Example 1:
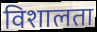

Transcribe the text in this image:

विशालता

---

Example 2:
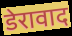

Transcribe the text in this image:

डेरावाद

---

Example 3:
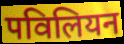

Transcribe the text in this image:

पविलियन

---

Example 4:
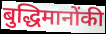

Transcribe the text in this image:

बुद्धिमानोंकी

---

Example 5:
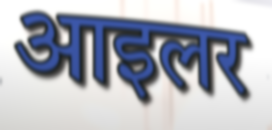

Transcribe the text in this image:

आइलर